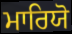
ਮਾਰਿਯੋ